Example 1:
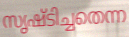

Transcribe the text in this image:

സൃഷ്ടിച്ചതെന്ന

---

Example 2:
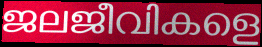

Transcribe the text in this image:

ജലജീവികളെ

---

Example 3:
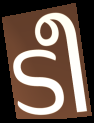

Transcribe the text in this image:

ടീ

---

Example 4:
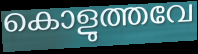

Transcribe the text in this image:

കൊളുത്തവേ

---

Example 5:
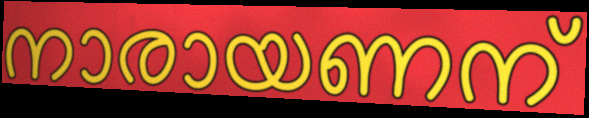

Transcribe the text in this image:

നാരായണന്